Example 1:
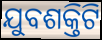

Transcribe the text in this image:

ଯୁବଶକ୍ତିଟି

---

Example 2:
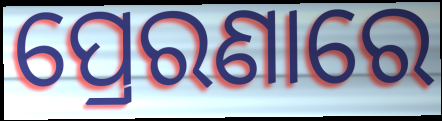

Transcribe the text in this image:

ପ୍ରେରଣାରେ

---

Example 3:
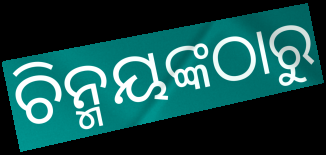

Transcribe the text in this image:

ଚିନ୍ମୟଙ୍କଠାରୁ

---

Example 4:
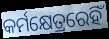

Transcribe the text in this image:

କର୍ମକ୍ଷେତ୍ରରେହିଁ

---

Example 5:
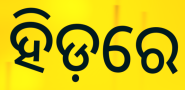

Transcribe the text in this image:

ହିଡ଼ରେ